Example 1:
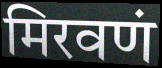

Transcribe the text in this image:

मिरवणं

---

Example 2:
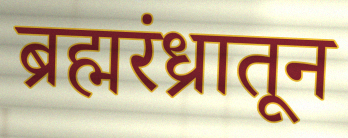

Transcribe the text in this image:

ब्रह्मरंध्रातून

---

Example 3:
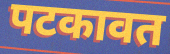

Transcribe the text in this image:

पटकावत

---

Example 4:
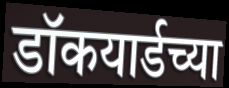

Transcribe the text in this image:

डॉकयार्डच्या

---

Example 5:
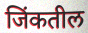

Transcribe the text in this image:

जिंकतील